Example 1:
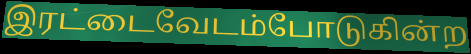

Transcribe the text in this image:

இரட்டைவேடம்போடுகின்ற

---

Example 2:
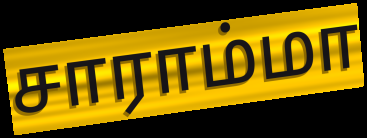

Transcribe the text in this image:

சாராம்மா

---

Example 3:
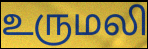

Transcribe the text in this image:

உருமலி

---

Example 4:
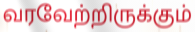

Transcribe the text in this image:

வரவேற்றிருக்கும்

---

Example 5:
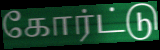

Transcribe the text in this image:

கோர்ட்டு